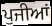
ਪੁਜੀਆਂ